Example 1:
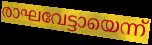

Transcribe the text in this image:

രാഘവേട്ടായെന്ന്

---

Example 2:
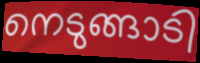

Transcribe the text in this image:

നെടുങ്ങാടി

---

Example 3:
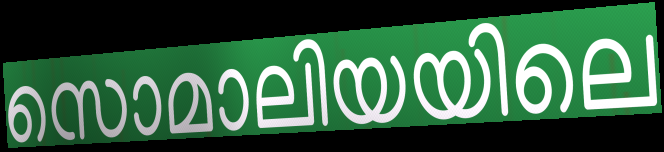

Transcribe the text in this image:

സൊമാലിയയിലെ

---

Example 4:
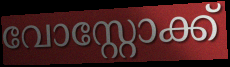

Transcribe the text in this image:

വോസ്റ്റോക്ക്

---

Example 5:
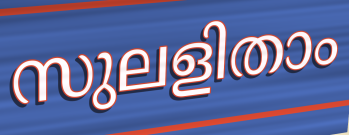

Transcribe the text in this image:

സുലളിതാം